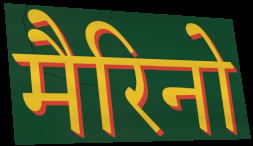
मैरिनो